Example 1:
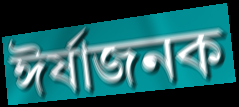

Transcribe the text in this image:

ঈর্ষাজনক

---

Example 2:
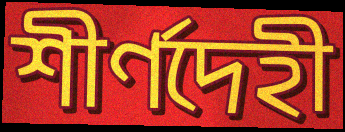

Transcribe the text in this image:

শীর্ণদেহী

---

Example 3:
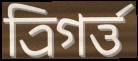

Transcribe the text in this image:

ত্রিগর্ত্ত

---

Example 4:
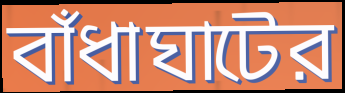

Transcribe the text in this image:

বাঁধাঘাটের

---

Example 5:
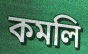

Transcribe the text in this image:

কমলি